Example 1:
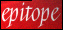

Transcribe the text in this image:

epitope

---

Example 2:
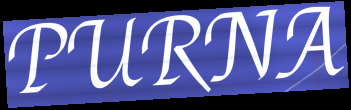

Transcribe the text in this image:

PURNA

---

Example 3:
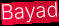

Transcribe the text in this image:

Bayad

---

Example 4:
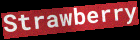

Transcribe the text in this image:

Strawberry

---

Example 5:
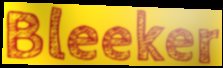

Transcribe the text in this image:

Bleeker